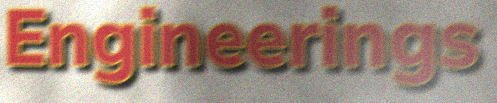
Engineerings